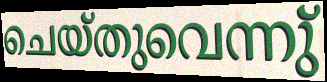
ചെയ്തുവെന്നു്